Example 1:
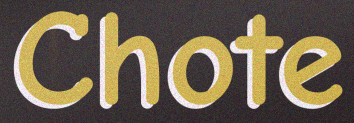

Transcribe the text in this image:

Chote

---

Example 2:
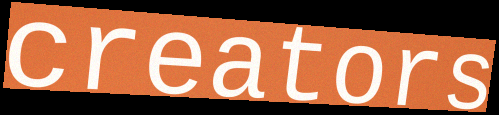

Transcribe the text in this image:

creators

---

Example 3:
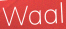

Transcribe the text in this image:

Waal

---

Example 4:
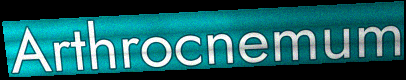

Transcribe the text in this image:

Arthrocnemum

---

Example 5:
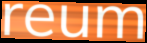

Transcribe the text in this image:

reum